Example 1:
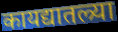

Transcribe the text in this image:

कायद्यातल्या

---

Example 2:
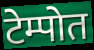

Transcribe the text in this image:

टेम्पोत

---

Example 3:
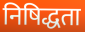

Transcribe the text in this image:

निषिद्धता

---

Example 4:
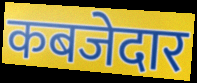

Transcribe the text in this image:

कबजेदार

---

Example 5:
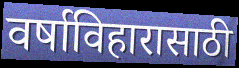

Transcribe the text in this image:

वर्षाविहारासाठी